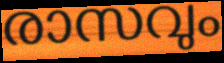
രാസവും